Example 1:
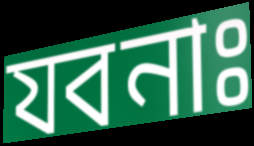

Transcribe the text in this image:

যবনাঃ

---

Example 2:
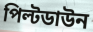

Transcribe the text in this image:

পিল্টডাউন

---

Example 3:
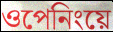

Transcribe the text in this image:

ওপেনিংয়ে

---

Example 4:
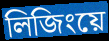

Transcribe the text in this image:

লিজিংয়ে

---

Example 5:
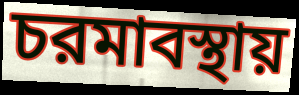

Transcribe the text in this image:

চরমাবস্থায়